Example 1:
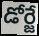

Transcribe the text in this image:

డోర్జే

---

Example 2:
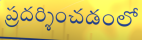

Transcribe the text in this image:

ప్రదర్శించడంలో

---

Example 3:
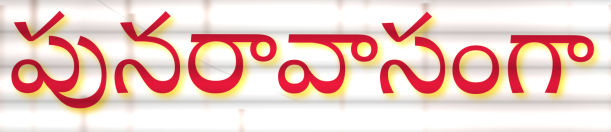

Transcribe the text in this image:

పునరావాసంగా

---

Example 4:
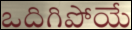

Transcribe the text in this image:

ఒదిగిపోయే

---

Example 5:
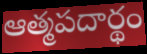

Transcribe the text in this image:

ఆత్మపదార్థం